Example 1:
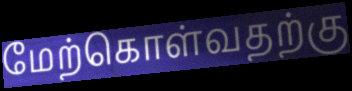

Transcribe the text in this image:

மேற்கொள்வதற்கு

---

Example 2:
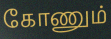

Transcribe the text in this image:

கோணும்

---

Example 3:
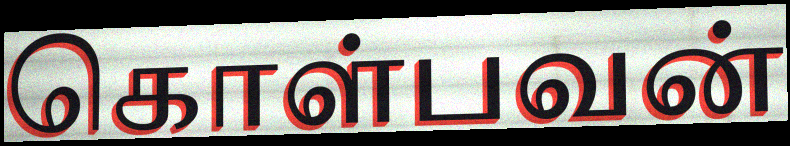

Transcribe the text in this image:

கொள்பவன்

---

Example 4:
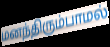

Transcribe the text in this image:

மனந்திரும்பாமல்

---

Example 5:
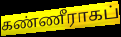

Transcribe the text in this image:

கண்ணீராகப்